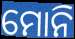
ମୋନି